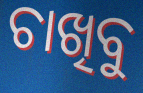
ଚାଖିବୁ